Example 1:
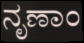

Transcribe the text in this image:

ನೃಣಾಂ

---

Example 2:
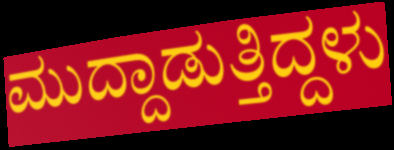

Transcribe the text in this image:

ಮುದ್ದಾಡುತ್ತಿದ್ದಳು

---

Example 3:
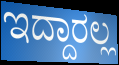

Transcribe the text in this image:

ಇದ್ದಾರಲ್ಲ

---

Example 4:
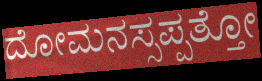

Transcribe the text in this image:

ದೋಮನಸ್ಸಪ್ಪತ್ತೋ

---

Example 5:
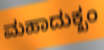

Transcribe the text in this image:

ಮಹಾದುಕ್ಖಂ